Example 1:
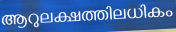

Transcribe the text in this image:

ആറുലക്ഷത്തിലധികം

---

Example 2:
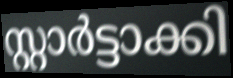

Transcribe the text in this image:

സ്റ്റാർട്ടാക്കി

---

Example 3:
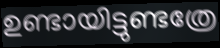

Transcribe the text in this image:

ഉണ്ടായിട്ടുണ്ടത്രേ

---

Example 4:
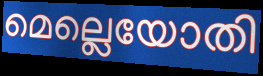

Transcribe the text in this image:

മെല്ലെയോതി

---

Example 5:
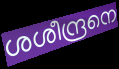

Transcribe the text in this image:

ശശീന്ദ്രനെ